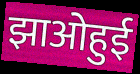
झाओहुई